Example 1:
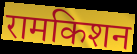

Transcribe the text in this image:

रामकिशन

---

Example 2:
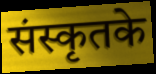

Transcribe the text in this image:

संस्कृतके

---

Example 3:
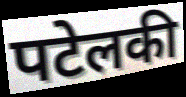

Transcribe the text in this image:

पटेलकी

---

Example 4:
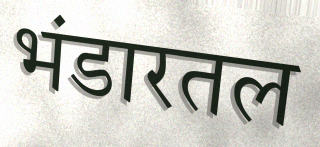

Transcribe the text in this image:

भंडारतल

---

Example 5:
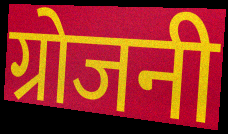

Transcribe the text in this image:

ग्रोजनी